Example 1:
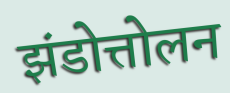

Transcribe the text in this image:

झंडोत्तोलन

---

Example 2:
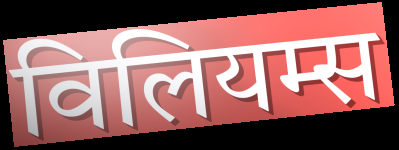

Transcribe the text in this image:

विलियम्स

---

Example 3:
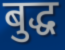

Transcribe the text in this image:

बुद्ध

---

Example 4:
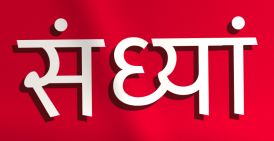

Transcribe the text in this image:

संध्यां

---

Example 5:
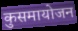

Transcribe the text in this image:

कुसमायोजन